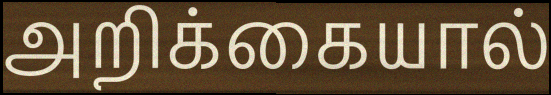
அறிக்கையால்